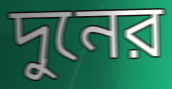
দুনের